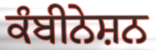
ਕੰਬੀਨੇਸ਼ਨ